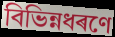
বিভিন্নধৰণে